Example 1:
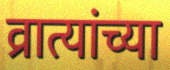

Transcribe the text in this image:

व्रात्यांच्या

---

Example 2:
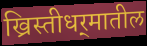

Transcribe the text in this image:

ख्रिस्तीधर्मातील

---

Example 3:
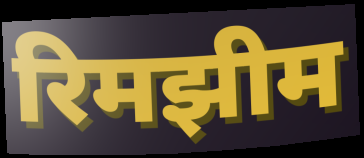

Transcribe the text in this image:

रिमझीम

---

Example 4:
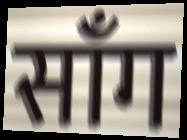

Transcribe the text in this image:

साँग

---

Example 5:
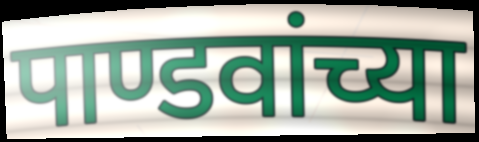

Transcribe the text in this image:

पाण्डवांच्या